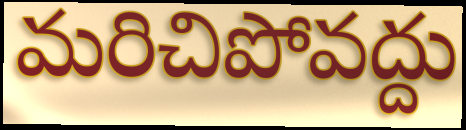
మరిచిపోవద్దు